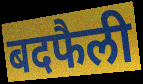
बदफैली